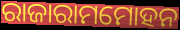
ରାଜାରାମମୋହନ